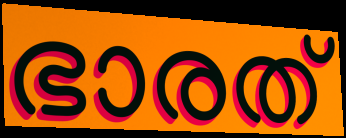
ഭാരത്